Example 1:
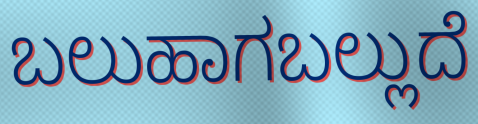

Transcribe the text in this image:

ಬಲುಹಾಗಬಲ್ಲುದೆ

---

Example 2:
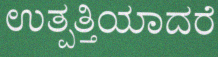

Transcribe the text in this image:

ಉತ್ಪತ್ತಿಯಾದರೆ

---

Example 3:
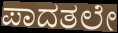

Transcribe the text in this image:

ಪಾದತಲೇ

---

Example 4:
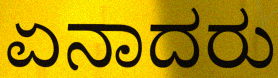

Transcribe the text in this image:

ಏನಾದರು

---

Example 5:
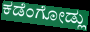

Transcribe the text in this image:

ಕಡೆಂಗೋಡ್ಲು